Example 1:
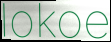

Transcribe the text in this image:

lokoe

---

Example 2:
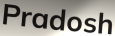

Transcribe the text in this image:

Pradosh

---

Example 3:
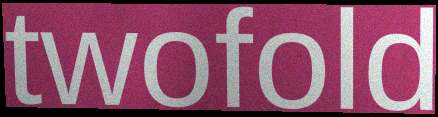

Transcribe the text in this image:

twofold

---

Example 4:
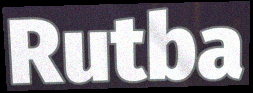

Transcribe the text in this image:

Rutba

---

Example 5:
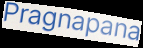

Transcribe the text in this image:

Pragnapana